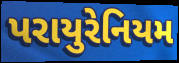
પરાયુરેનિયમ